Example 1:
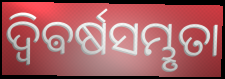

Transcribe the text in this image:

ଦ୍ଵିଵର୍ଷସମ୍ଭୃତା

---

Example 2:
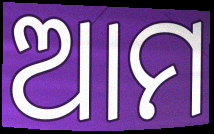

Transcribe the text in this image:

ଆମ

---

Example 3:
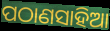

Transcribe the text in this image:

ପଠାଣସାହିଆ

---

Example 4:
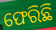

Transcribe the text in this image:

ଫେରିଛି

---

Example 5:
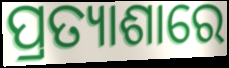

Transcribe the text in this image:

ପ୍ରତ୍ୟାଶାରେ